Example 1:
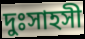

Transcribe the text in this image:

দুঃসাহসী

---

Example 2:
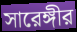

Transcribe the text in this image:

সারেঙ্গীর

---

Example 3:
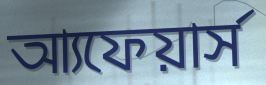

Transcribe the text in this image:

আ্যফেয়ার্স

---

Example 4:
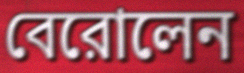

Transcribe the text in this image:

বেরোলেন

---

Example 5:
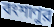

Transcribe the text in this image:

বংশাণুর